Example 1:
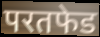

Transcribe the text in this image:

परतफेड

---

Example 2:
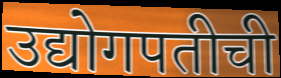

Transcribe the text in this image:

उद्योगपतीची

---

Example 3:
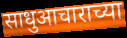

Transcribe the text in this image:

साधुआचाराच्या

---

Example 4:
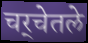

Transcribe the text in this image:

चर्चेतले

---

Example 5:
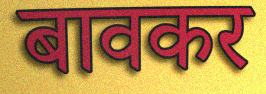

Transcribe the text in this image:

बावकर